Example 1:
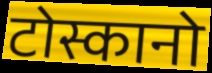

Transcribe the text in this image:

टोस्कानो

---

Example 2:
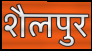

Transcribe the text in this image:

शैलपुर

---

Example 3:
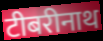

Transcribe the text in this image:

टीबरीनाथ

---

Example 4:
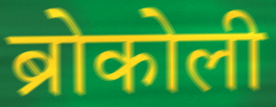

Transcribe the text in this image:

ब्रोकोली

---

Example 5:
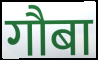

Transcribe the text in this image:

गौबा